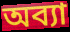
অব্যা